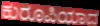
ಕುರೂಪಿಯಾದ